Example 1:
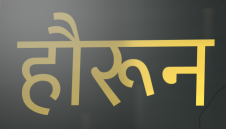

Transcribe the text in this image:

हौरून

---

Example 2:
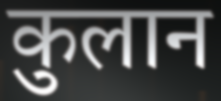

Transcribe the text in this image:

कुलान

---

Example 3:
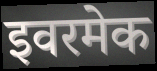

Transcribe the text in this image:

इवरमेक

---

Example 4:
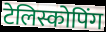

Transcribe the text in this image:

टेलिस्कोपिंग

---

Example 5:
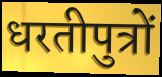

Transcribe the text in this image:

धरतीपुत्रों